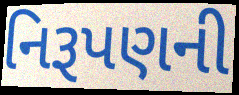
નિરૂપણની